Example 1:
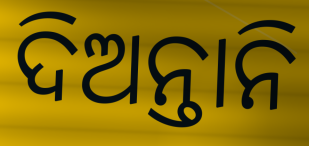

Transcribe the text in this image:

ଦିଅନ୍ତାନି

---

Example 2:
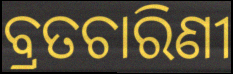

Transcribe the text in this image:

ବ୍ରତଚାରିଣୀ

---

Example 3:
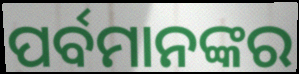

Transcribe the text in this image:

ପର୍ବମାନଙ୍କର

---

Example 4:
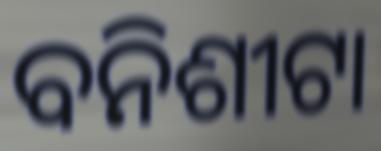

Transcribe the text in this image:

ବନିଶୀଟା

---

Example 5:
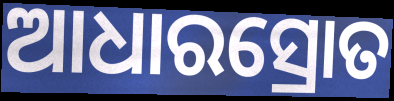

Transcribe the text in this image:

ଆଧାରସ୍ରୋତ